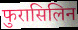
फुरासिलिन